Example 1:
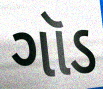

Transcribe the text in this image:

ગૉડ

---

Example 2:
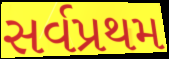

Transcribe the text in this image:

સર્વપ્રથમ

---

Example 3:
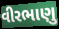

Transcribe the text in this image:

વીરભાણુ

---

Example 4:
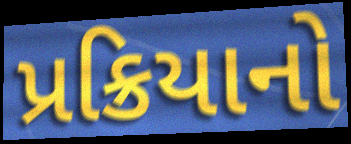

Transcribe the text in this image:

પ્રક્રિયાનો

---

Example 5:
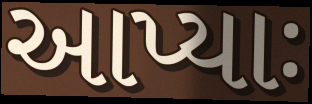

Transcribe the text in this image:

આપ્યાઃ